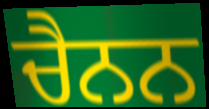
ਚੈਨਨ